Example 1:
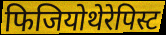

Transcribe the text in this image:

फिजियोथेरेपिस्ट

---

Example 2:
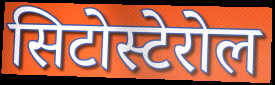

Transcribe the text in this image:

सिटोस्टेरोल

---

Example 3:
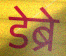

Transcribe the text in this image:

डेब्रे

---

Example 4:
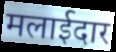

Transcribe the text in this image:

मलाईदार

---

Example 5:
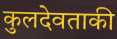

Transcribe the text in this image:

कुलदेवताकी